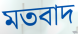
মতবাদ